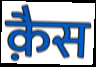
क़ैस